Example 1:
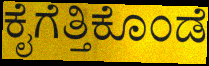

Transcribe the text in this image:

ಕೈಗೆತ್ತಿಕೊಂಡೆ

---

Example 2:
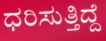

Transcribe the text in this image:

ಧರಿಸುತ್ತಿದ್ದೆ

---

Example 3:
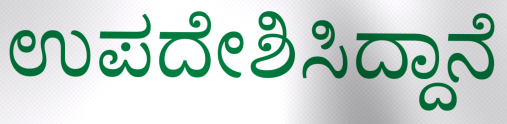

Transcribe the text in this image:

ಉಪದೇಶಿಸಿದ್ದಾನೆ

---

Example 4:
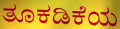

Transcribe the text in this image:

ತೂಕಡಿಕೆಯ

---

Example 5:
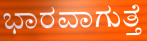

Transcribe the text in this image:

ಭಾರವಾಗುತ್ತೆ